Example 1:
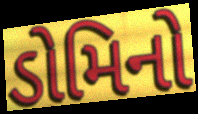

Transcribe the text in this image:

ડોમિનો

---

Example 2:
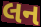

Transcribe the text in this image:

લન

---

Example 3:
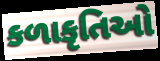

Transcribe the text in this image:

કળાકૃતિઓ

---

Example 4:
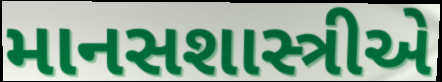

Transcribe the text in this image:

માનસશાસ્ત્રીએ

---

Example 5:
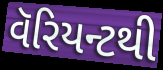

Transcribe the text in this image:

વૅરિયન્ટથી